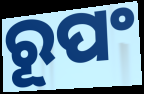
ରୂପଂ